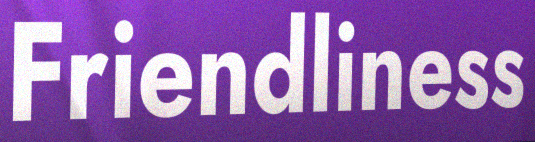
Friendliness